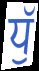
ਧੁੱ